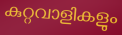
കുറ്റവാളികളും